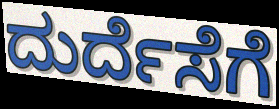
ದುರ್ದೆಸೆಗೆ